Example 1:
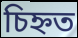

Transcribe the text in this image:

চিহ্নত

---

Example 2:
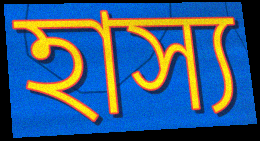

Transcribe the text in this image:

হাস্য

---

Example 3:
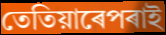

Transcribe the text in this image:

তেতিয়াৰেপৰাই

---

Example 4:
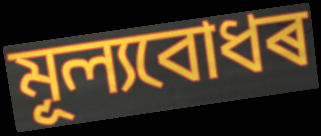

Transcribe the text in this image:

মূল্যবোধৰ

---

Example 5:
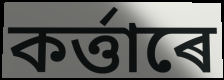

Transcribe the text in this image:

কৰ্ত্তাৰে